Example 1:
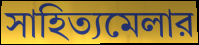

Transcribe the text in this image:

সাহিত্যমেলার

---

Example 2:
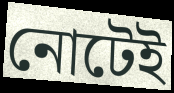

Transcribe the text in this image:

নোটেই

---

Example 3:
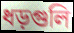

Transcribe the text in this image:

ধড়গুলি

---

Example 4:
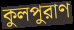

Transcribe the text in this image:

কুলপুরাণ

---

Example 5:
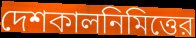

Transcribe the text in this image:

দেশকালনিমিত্তের